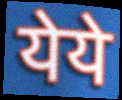
येये